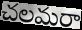
చలమరా